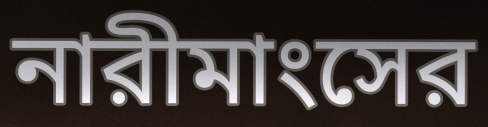
নারীমাংসের